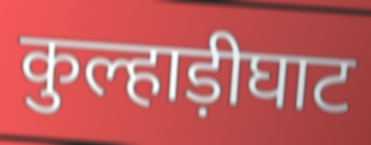
कुल्हाड़ीघाट